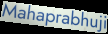
Mahaprabhuji